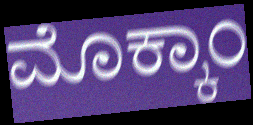
ಮೊಕ್ಕಾಂ